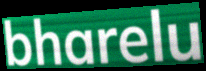
bharelu